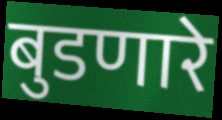
बुडणारे